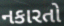
નકારતો